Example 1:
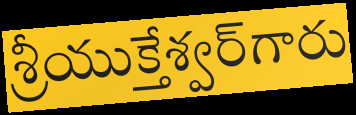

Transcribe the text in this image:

శ్రీయుక్తేశ్వర్‌గారు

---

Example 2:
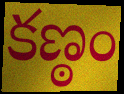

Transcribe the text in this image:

కణ్ఠం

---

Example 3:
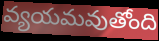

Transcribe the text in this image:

వ్యయమవుతోంది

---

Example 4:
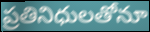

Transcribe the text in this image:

ప్రతినిధులతోనూ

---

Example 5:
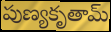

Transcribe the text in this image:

పుణ్యకృతామ్